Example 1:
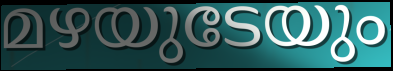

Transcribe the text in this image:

മഴയുടേയും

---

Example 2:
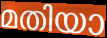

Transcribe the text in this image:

മതിയാ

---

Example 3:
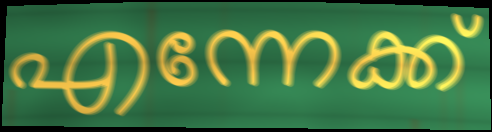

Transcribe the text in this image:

എന്നേക്ക്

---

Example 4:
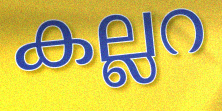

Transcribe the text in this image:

കല്ലറ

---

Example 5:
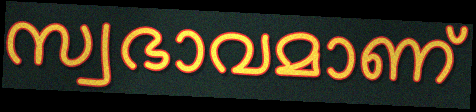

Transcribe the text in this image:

സ്വഭാവമാണ്